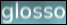
glosso